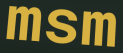
msm